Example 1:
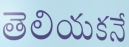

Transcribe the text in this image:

తెలియకనే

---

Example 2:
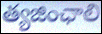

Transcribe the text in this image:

త్యజింఛాలి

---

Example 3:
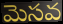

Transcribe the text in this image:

మెసవ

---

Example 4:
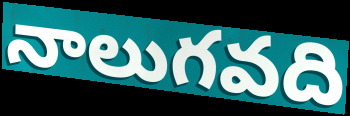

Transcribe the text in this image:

నాలుగవది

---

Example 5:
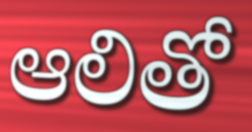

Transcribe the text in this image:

ఆలితో